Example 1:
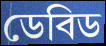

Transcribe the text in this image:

ডেবিড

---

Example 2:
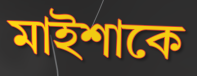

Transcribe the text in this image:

মাইশাকে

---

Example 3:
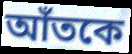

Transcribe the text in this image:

আঁতকে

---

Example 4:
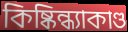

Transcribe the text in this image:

কিষ্কিন্ধ্যাকাণ্ড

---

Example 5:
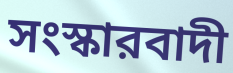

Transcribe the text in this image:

সংস্কারবাদী